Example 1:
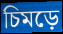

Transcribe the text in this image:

চিমড়ে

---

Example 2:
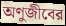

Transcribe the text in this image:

অণুজীবের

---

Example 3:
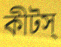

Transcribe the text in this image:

কীটস্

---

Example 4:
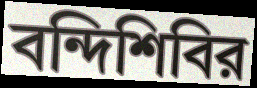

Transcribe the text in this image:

বন্দিশিবির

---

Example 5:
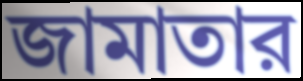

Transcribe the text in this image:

জামাতার